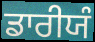
ਡਾਰੀਯੰ